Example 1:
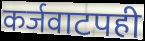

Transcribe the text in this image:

कर्जवाटपही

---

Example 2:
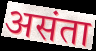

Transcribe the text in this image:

असंता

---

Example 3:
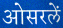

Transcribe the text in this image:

ओसरलें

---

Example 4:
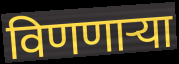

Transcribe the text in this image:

विणणाऱ्या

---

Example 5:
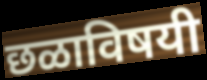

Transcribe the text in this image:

छळाविषयी